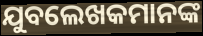
ଯୁବଲେଖକମାନଙ୍କ